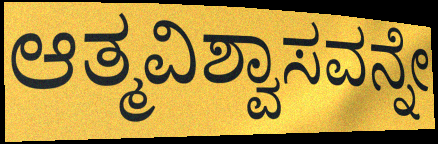
ಆತ್ಮವಿಶ್ವಾಸವನ್ನೇ